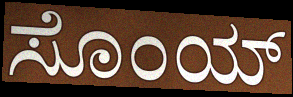
ಸೊಂಯ್